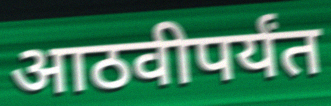
आठवीपर्यंत